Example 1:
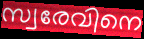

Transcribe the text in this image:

സ്വരേവിനെ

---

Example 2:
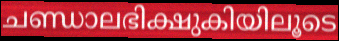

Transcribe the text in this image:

ചണ്ഡാലഭിക്ഷുകിയിലൂടെ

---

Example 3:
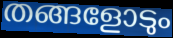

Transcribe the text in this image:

തങ്ങളോടും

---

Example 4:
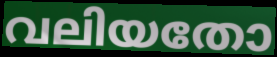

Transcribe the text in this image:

വലിയതോ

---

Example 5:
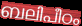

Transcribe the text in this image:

ബലിപീഠം